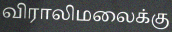
விராலிமலைக்கு